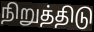
நிறுத்திடு